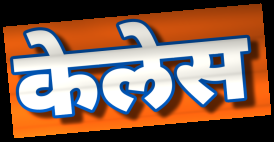
केलेस